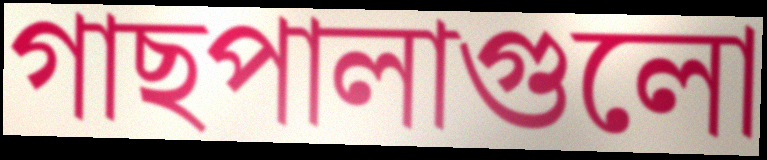
গাছপালাগুলো